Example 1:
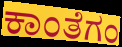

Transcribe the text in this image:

ಕಾಂತೆಗಂ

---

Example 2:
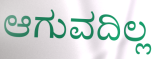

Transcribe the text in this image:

ಆಗುವದಿಲ್ಲ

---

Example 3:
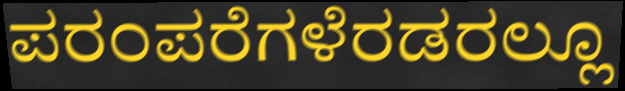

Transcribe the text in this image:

ಪರಂಪರೆಗಳೆರಡರಲ್ಲೂ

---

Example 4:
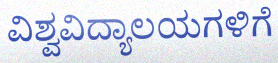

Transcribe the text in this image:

ವಿಶ್ವವಿದ್ಯಾಲಯಗಳಿಗೆ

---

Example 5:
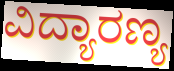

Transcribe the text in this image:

ವಿದ್ಯಾರಣ್ಯ